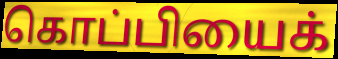
கொப்பியைக்